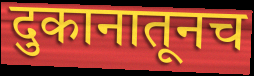
दुकानातूनच